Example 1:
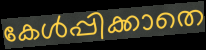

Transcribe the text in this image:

കേൾപ്പിക്കാതെ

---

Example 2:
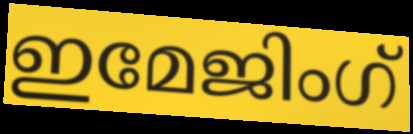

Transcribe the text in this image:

ഇമേജിംഗ്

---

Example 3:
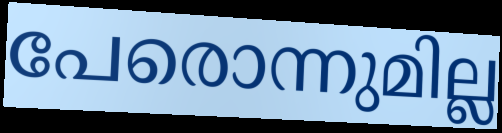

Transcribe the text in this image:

പേരൊന്നുമില്ല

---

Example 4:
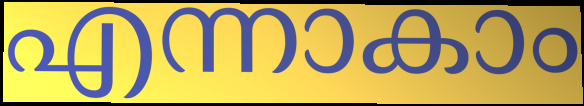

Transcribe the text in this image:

എന്നാകാം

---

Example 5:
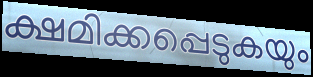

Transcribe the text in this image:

ക്ഷമിക്കപ്പെടുകയും